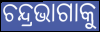
ଚନ୍ଦ୍ରଭାଗାକୁ